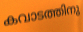
കവാടത്തിനു